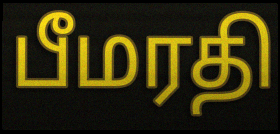
பீமரதி